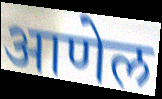
आणेल